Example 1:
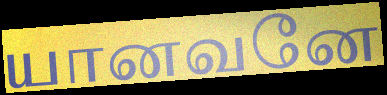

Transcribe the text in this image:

யானவனே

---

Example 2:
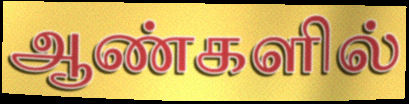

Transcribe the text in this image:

ஆண்களில்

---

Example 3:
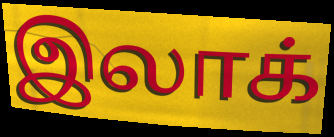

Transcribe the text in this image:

இலாக்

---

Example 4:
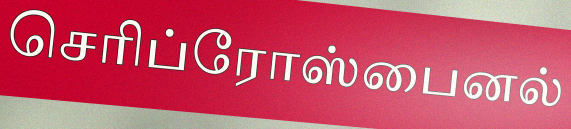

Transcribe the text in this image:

செரிப்ரோஸ்பைனல்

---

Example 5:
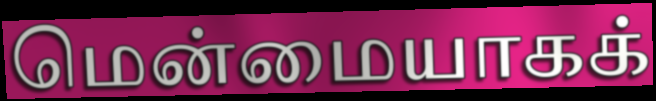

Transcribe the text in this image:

மென்மையாகக்